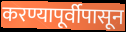
करण्यापूर्वीपासून